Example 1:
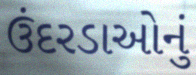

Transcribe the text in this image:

ઉંદરડાઓનું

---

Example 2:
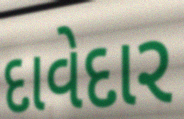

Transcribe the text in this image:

દાવેદાર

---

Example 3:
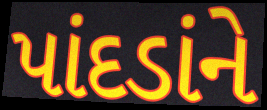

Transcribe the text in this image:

પાંદડાંને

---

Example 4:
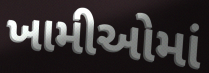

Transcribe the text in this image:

ખામીઓમાં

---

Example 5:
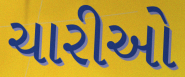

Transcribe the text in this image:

ચારીઓ